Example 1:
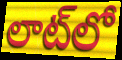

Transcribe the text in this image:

లాట్‌లో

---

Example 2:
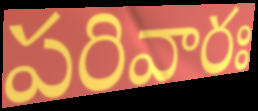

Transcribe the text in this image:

పరివారః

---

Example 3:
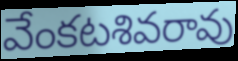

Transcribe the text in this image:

వేంకటశివరావు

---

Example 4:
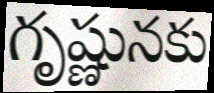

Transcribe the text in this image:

గృష్ణునకు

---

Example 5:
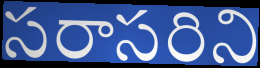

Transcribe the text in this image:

సరాసరిని